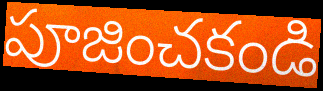
పూజించకండి